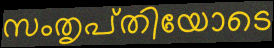
സംതൃപ്‌തിയോടെ